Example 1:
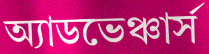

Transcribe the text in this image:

অ্যাডভেঞ্চার্স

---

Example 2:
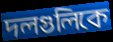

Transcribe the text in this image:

দলগুলিকে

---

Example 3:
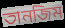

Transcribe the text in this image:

তানজিম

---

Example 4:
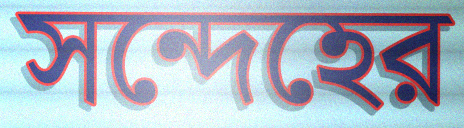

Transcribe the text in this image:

সন্দেহের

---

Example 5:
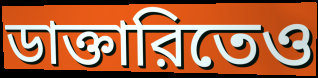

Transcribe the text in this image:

ডাক্তারিতেও